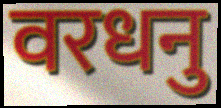
वरधनु